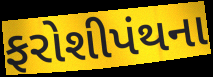
ફરોશીપંથના